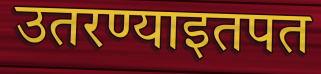
उतरण्याइतपत